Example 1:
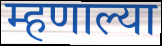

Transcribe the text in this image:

म्हणाल्या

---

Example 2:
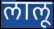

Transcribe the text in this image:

लालू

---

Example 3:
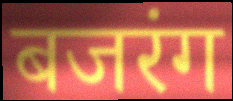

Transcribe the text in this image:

बजरंग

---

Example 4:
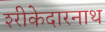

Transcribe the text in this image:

श्रीकेदारनाथ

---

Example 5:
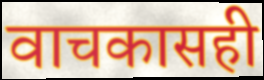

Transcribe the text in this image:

वाचकासही